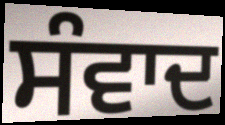
ਸੰਵਾਦ